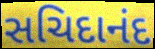
સચિદાનંદ